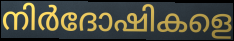
നിർദോഷികളെ